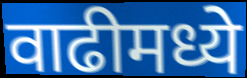
वाढीमध्ये